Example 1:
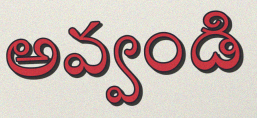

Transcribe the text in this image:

అవ్వండి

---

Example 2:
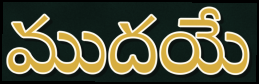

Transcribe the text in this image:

ముదయే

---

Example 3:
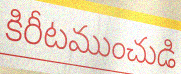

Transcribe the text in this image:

కిరీటముంచుడి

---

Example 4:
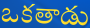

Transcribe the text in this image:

ఒకతాడు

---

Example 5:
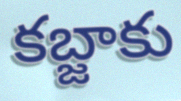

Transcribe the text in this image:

కబ్జాకు